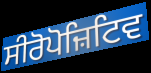
ਸੀਰੋਪੋਜ਼ਿਟਿਵ